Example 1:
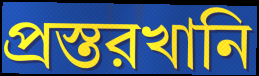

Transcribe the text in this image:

প্রস্তরখানি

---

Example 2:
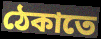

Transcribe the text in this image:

ঠেকাতে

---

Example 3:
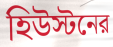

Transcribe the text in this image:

হিউস্টনের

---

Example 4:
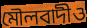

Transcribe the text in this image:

মৌলবাদীও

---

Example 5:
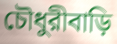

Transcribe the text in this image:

চৌধুরীবাড়ি